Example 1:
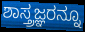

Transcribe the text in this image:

ಶಾಸ್ತ್ರಜ್ಞರನ್ನೂ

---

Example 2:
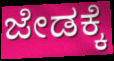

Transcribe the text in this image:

ಜೇಡಕ್ಕೆ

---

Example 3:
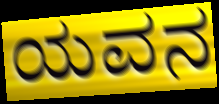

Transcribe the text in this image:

ಯವನ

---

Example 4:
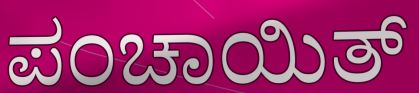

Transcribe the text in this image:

ಪಂಚಾಯಿತ್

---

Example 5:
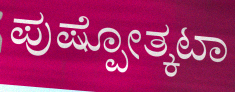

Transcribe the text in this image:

ಪುಷ್ಪೋತ್ಕಟಾ